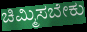
ಚಿಮ್ಮಿಸಬೇಕು